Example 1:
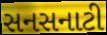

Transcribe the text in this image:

સનસનાટી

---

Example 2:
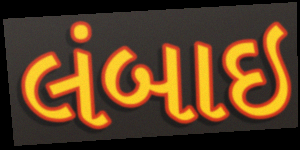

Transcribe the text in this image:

લંબાઇ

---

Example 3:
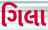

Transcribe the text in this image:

ગિલા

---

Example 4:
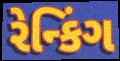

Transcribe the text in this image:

રેન્કિંગ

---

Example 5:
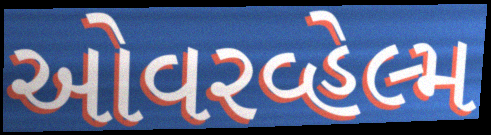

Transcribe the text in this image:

ઓવરવ્હેલ્મ